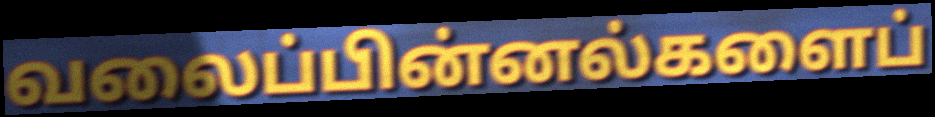
வலைப்பின்னல்களைப்